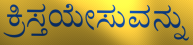
ಕ್ರಿಸ್ತಯೇಸುವನ್ನು